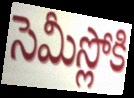
సెమీస్లోకి